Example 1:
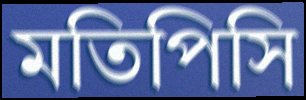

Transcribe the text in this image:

মতিপিসি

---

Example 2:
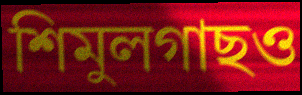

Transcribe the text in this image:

শিমুলগাছও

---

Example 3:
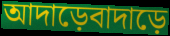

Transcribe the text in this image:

আদাড়েবাদাড়ে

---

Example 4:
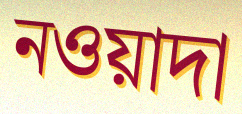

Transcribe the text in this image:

নওয়াদা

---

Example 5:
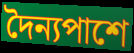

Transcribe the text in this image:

দৈন্যপাশে